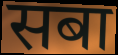
सबा